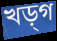
খড়্‌গ